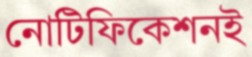
নোটিফিকেশনই